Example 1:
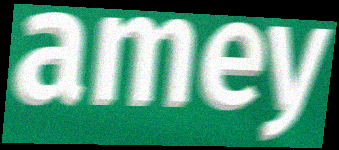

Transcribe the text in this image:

amey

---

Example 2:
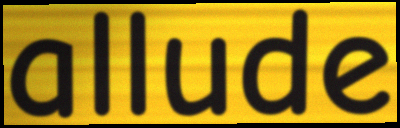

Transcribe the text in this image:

allude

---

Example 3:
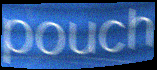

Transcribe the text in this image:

pouch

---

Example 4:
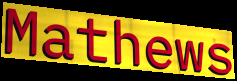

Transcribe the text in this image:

Mathews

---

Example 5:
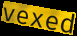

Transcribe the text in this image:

vexed